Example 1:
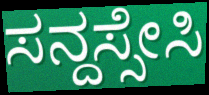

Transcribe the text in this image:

ಸನ್ದಸ್ಸೇಸಿ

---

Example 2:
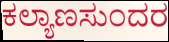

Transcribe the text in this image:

ಕಲ್ಯಾಣಸುಂದರ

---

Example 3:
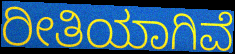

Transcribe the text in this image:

ರೀತಿಯಾಗಿವೆ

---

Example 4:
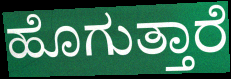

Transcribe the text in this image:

ಹೊಗುತ್ತಾರೆ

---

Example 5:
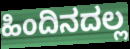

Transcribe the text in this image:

ಹಿಂದಿನದಲ್ಲ